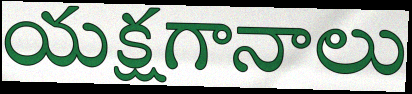
యక్షగానాలు